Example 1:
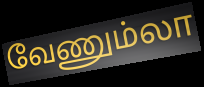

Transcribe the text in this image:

வேணும்லா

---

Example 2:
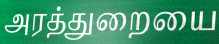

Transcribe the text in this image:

அரத்துறையை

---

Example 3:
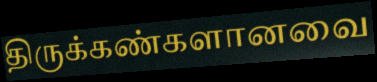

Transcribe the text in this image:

திருக்கண்களானவை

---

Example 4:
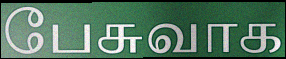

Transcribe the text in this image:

பேசுவாக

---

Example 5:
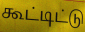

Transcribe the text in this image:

கூட்டிட்டு